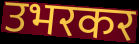
उभरकर